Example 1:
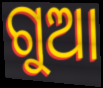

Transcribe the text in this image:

ଗୁଆ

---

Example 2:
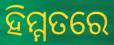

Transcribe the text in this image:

ହିମ୍ମତରେ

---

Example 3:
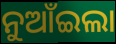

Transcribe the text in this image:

ନୁଆଁଇଲା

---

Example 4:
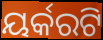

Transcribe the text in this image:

ୟର୍କରଟି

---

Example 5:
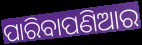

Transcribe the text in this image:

ପାରିବାପଣିଆର